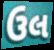
ઉલ